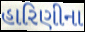
હારિણીના